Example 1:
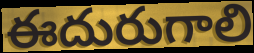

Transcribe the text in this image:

ఈదురుగాలి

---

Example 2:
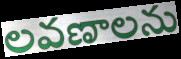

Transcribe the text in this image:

లవణాలను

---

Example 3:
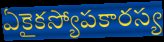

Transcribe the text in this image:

ఏకైకస్యోపకారస్య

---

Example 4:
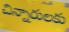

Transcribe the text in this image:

చిన్నారులకు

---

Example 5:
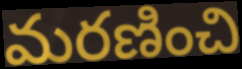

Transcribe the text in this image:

మరణించి